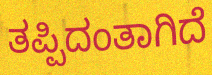
ತಪ್ಪಿದಂತಾಗಿದೆ